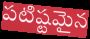
పటిష్టమైన